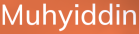
Muhyiddin